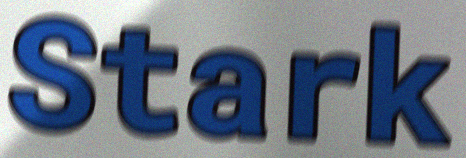
Stark